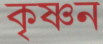
কৃষ্ণন